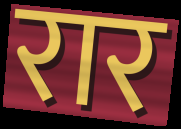
रार